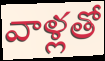
వాళ్లతో